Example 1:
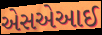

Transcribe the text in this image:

એસએઆઈ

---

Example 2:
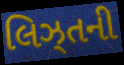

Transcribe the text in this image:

લિઝ્તની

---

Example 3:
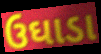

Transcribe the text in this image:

ઉઘાડા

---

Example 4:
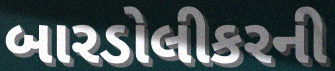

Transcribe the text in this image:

બારડોલીકરની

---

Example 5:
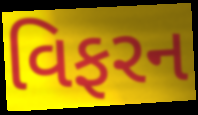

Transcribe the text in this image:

વિફરન